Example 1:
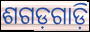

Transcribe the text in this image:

ଶଗଡ଼ଗାଡ଼ି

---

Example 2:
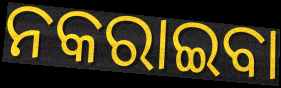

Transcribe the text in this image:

ନକରାଇବା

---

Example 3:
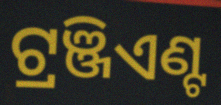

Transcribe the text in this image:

ଟ୍ରଞ୍ଜିଏଣ୍ଟ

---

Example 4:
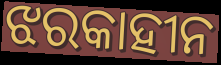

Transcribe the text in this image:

ଝରକାହୀନ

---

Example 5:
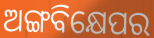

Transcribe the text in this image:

ଅଙ୍ଗବିକ୍ଷେପର